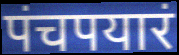
पंचपयारं